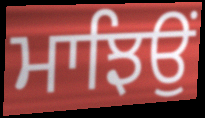
ਮਾਝਿਉਂ